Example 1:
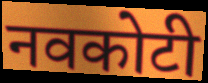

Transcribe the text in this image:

नवकोटी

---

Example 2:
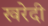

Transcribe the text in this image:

खरेदी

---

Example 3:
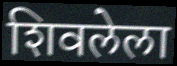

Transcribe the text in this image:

शिवलेला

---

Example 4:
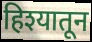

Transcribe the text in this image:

हिश्यातून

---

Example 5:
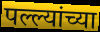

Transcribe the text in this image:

पल्ल्यांच्या